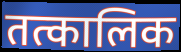
तत्कालिक